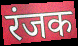
रंजक